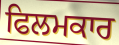
ਫਿਲਮਕਾਰ